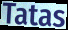
Tatas